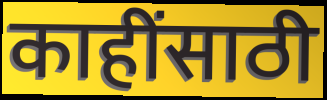
काहींसाठी